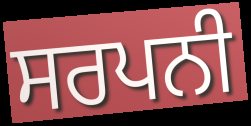
ਸਰਪਨੀ